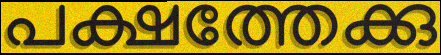
പക്ഷത്തേക്കു